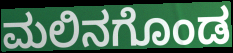
ಮಲಿನಗೊಂಡ